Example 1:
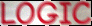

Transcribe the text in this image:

LOGIC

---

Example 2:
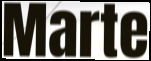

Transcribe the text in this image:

Marte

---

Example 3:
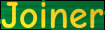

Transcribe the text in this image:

Joiner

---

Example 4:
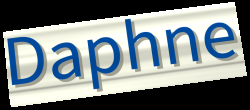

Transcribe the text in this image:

Daphne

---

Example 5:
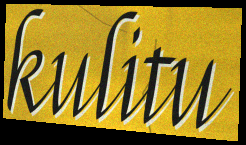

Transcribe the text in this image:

kulitu